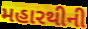
મહારથીની